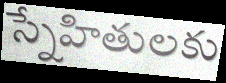
స్నేహితులకు